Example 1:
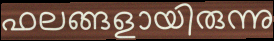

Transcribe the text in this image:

ഫലങ്ങളായിരുന്നു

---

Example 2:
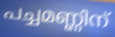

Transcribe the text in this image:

പച്ചമണ്ണിന്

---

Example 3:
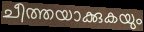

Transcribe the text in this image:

ചീത്തയാക്കുകയും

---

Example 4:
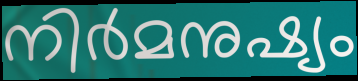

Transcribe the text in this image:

നിർമനുഷ്യം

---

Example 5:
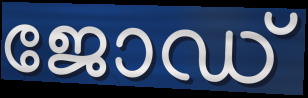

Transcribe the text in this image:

ജോഡ്